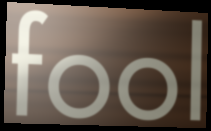
fool